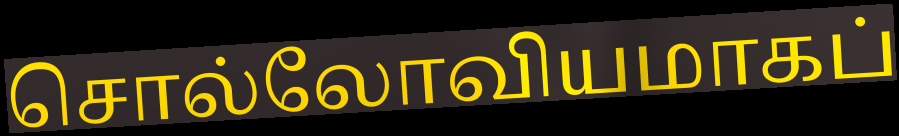
சொல்லோவியமாகப்